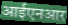
आईएनआर